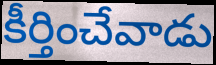
కీర్తించేవాడు